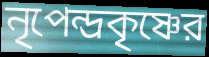
নৃপেন্দ্রকৃষ্ণের